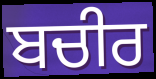
ਬਚੀਰ